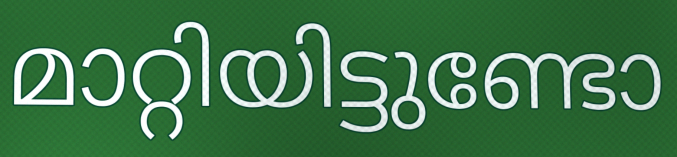
മാറ്റിയിട്ടുണ്ടോ